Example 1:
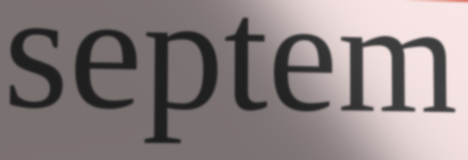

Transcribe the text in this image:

septem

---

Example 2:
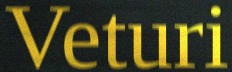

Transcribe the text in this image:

Veturi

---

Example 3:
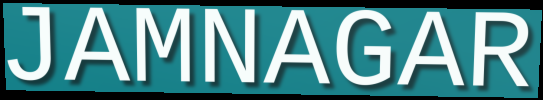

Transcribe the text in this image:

JAMNAGAR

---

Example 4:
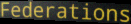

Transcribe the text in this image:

Federations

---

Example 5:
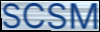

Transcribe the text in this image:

SCSM